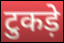
टुकड़े